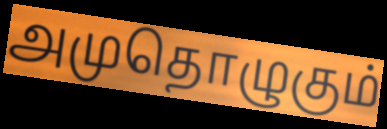
அமுதொழுகும்